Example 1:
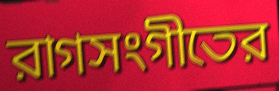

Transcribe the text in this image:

রাগসংগীতের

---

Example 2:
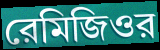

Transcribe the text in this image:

রেমিজিওর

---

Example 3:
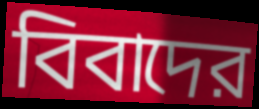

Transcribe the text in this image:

বিবাদের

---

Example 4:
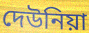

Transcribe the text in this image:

দেউনিয়া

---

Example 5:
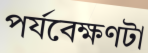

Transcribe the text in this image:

পর্যবেক্ষণটা